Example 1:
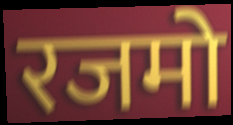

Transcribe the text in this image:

रजमो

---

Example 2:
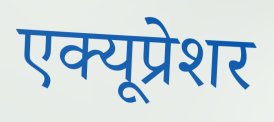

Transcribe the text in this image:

एक्यूप्रेशर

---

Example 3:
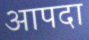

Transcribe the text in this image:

आपदा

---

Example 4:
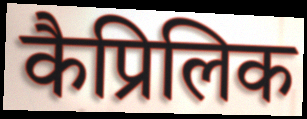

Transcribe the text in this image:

कैप्रिलिक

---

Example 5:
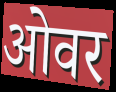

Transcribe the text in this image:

ओवर